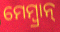
ମେମ୍ବ୍ରାନ୍